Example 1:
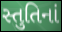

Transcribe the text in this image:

સ્તુતિનાં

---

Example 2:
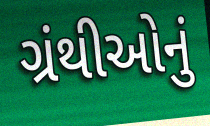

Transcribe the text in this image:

ગ્રંથીઓનું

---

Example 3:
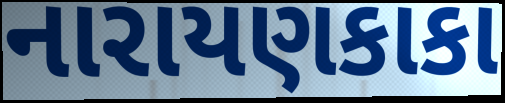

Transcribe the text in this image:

નારાયણકાકા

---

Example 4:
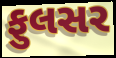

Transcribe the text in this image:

ફુલસર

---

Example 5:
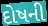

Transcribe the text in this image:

દોષની